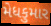
મેધકુમાર